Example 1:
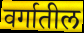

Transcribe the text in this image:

वर्गातील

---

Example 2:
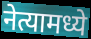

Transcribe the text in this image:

नेत्यामध्ये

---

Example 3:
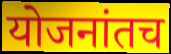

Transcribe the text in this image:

योजनांतच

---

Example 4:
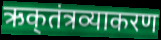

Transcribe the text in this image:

ऋक्‌तंत्रव्याकरण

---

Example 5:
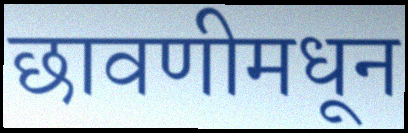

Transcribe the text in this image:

छावणीमधून